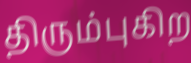
திரும்புகிற